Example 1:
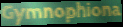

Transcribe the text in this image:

Gymnophiona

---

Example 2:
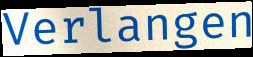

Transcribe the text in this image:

Verlangen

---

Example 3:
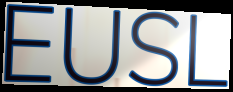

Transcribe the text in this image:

EUSL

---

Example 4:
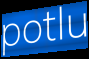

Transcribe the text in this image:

potlu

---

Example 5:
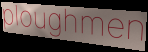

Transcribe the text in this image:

ploughmen